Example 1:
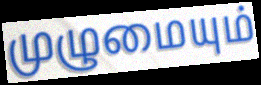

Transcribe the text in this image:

முழுமையும்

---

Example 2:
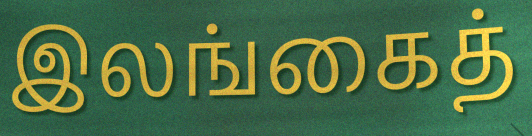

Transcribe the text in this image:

இலங்கைத்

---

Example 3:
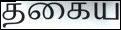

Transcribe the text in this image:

தகைய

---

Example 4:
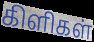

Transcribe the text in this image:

கிளிகள்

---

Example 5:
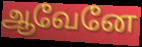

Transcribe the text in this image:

ஆவேனே